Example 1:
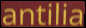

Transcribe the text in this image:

antilia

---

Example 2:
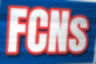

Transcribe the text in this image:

FCNs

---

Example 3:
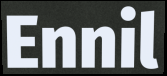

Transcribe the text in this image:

Ennil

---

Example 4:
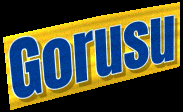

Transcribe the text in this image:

Gorusu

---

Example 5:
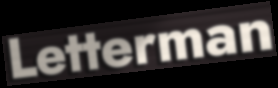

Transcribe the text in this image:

Letterman